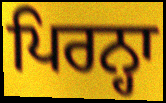
ਪਿਰਨ੍ਹਾ